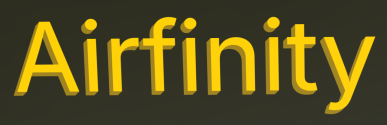
Airfinity